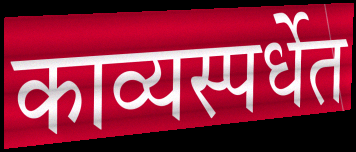
काव्यस्पर्धेत